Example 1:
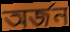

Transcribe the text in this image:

অর্জন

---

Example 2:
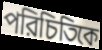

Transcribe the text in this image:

পরিচিতিকে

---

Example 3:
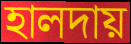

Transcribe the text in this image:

হালদায়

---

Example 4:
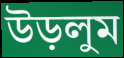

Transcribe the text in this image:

উড়লুম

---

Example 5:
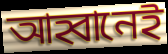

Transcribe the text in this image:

আহ্বানেই